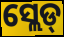
ସ୍ଲେଡ୍